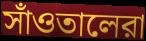
সাঁওতালেরা